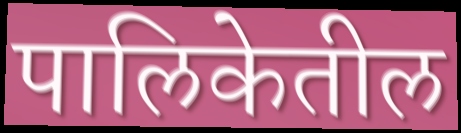
पालिकेतील